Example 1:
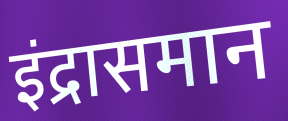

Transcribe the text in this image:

इंद्रासमान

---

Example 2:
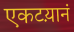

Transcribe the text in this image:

एकटय़ानं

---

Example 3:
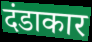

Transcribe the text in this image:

दंडाकार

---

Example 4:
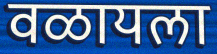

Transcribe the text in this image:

वळायला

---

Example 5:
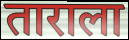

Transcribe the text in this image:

ताराला